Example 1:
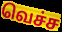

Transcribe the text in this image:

வெச்ச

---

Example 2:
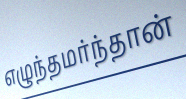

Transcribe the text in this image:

எழுந்தமர்ந்தான்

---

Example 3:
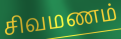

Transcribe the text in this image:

சிவமணம்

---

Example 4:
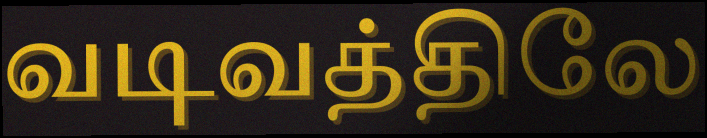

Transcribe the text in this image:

வடிவத்திலே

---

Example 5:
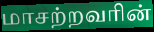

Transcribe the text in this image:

மாசற்றவரின்